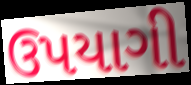
ઉપયાગી